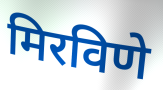
मिरविणे